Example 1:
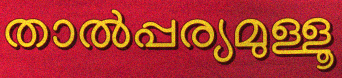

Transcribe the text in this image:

താൽപ്പര്യമുള്ളൂ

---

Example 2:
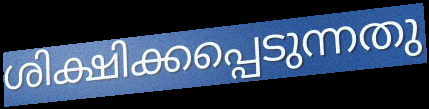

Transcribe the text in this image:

ശിക്ഷിക്കപ്പെടുന്നതു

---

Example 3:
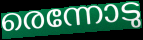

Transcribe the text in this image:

രെന്നോടു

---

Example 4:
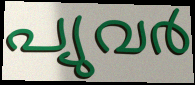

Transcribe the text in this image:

പ്യുവർ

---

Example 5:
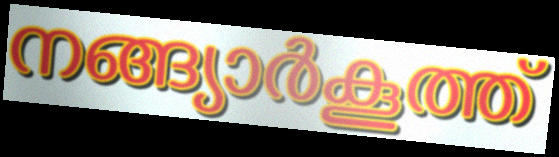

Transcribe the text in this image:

നങ്ങ്യാർകൂത്ത്